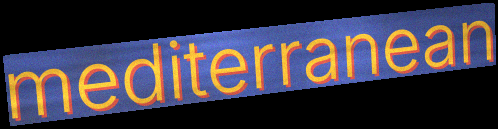
mediterranean